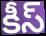
కీస్